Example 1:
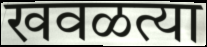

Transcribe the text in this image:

खवळत्या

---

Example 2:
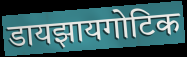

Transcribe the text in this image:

डायझायगोटिक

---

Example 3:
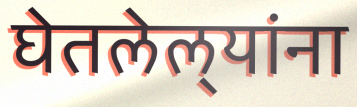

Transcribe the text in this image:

घेतलेल्यांना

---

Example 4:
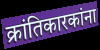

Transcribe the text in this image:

क्रांतिकारकांना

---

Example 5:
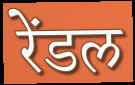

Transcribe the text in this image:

रेंडल